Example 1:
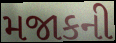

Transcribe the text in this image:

મજાકની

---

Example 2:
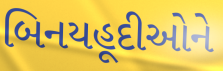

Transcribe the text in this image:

બિનયહૂદીઓને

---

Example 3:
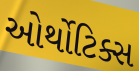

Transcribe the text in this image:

ઓર્થોટિક્સ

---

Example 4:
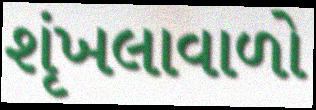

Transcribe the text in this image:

શૃંખલાવાળો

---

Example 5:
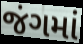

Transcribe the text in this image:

જંગમાં